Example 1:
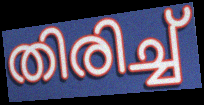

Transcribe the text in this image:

തിരിച്ച്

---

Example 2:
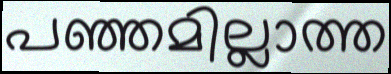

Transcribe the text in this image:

പഞ്ഞമില്ലാത്ത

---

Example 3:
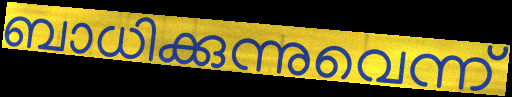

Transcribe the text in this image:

ബാധിക്കുന്നുവെന്ന്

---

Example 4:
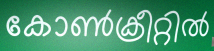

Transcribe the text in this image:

കോൺക്രീറ്റിൽ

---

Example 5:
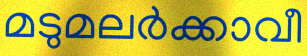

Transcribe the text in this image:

മടുമലർക്കാവീ